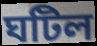
ঘটিল